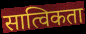
सात्विकता